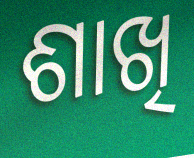
ଶାଖି